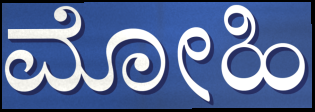
ಮೋಹಿ